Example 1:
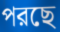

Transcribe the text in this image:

পরছে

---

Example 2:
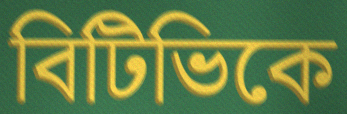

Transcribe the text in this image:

বিটিভিকে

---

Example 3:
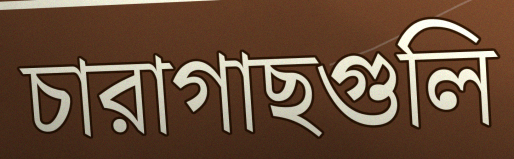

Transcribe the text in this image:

চারাগাছগুলি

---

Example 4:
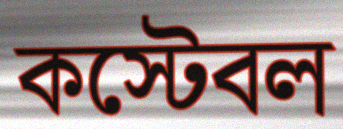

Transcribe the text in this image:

কস্টেবল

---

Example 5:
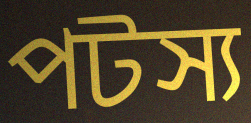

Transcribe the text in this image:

পটস্য